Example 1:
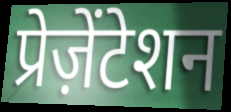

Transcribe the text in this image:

प्रेज़ेंटेशन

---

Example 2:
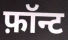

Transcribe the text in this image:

फ़ॉन्ट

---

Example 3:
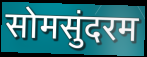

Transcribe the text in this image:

सोमसुंदरम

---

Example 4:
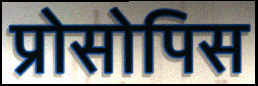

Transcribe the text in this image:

प्रोसोपिस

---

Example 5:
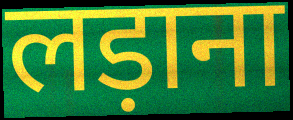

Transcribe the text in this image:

लड़ाना